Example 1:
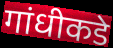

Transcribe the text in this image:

गांधीकडे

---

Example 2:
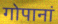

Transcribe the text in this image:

गोपानां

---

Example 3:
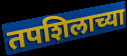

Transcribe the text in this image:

तपशिलाच्या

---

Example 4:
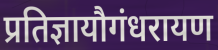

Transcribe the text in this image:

प्रतिज्ञायौगंधरायण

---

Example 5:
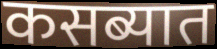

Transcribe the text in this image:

कसब्यात